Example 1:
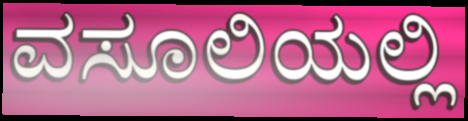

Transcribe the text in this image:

ವಸೂಲಿಯಲ್ಲಿ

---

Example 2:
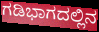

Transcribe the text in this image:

ಗಡಿಭಾಗದಲ್ಲಿನ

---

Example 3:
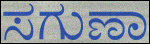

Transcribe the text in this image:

ಸಗುಣಾ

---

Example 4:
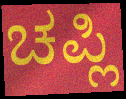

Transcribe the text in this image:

ಚಪ್ಲಿ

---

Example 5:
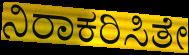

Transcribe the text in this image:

ನಿರಾಕರಿಸಿತೇ